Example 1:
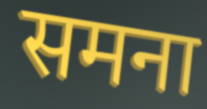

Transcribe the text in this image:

समना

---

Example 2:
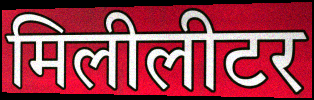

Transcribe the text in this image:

मिलीलीटर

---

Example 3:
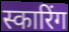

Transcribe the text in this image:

स्कारिंग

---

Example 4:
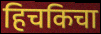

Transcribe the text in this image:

हिचकिचा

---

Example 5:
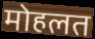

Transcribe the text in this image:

मोहलत